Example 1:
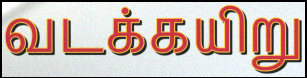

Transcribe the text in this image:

வடக்கயிறு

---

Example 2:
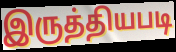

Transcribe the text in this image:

இருத்தியபடி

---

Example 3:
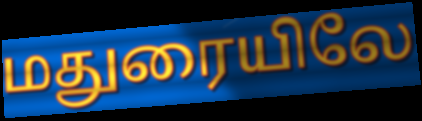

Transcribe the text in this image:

மதுரையிலே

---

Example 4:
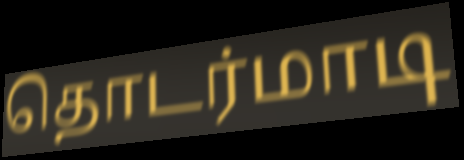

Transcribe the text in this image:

தொடர்மாடி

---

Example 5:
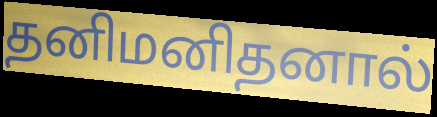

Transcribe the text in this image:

தனிமனிதனால்